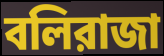
বলিরাজা